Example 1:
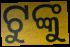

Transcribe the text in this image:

ଟୁଙ୍କୁ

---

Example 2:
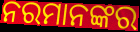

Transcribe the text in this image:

ନରମାନଙ୍କର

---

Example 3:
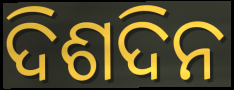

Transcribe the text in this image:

ଦିଶଦିନ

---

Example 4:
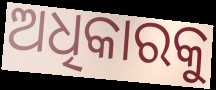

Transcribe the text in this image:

ଅଧିକାରକୁ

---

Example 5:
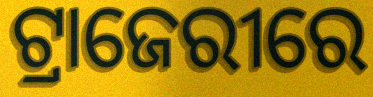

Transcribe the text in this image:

ଟ୍ରାଜେରୀରେ